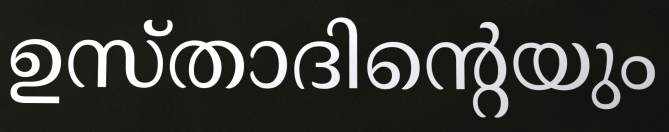
ഉസ്താദിന്റെയും